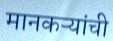
मानकऱ्यांची